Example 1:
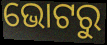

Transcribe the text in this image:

ଭୋଟରୁ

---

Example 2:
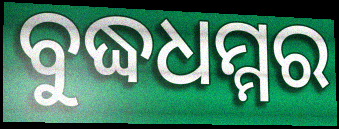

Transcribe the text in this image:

ବୁଦ୍ଧଧମ୍ମର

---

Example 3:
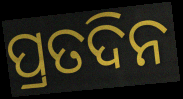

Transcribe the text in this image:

ପ୍ରତଦିନ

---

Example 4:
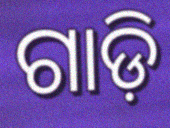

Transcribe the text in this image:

ଗାଡ଼ି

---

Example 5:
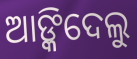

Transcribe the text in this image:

ଆଙ୍କିଦେଲୁ